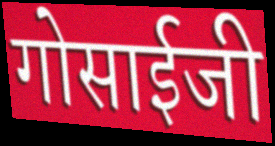
गोसाईजी